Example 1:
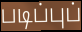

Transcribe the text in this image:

படிப்புப்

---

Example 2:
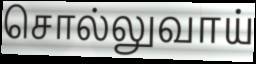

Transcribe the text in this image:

சொல்லுவாய்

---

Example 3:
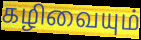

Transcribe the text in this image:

கழிவையும்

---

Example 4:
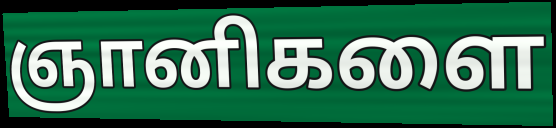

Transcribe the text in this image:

ஞானிகளை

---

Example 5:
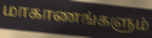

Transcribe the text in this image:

மாகாணங்களும்